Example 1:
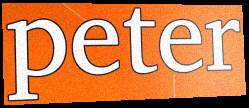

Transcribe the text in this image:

peter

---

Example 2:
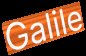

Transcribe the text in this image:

Galile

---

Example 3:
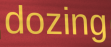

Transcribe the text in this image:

dozing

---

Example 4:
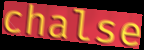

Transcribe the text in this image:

chalse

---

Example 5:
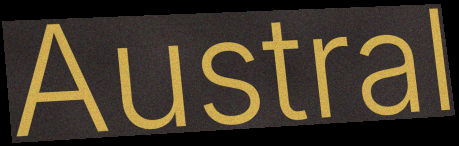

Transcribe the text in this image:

Austral